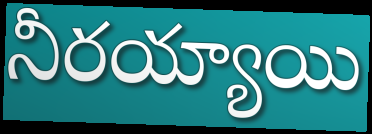
నీరయ్యాయి